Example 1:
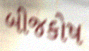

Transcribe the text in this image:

બીજકોષ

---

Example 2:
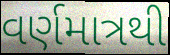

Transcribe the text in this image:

વર્ણમાત્રથી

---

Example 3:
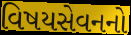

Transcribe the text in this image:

વિષયસેવનનો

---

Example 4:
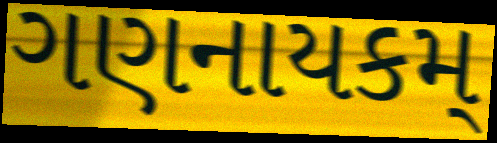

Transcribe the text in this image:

ગણનાયકમ્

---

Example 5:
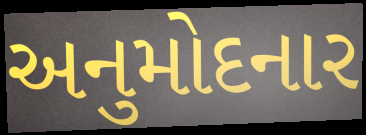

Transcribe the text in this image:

અનુમોદનાર